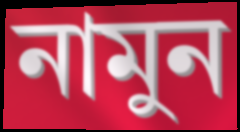
নামুন